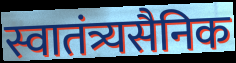
स्वातंत्र्यसैनिक